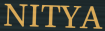
NITYA